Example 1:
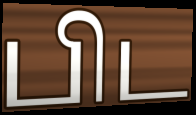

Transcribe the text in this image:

பிட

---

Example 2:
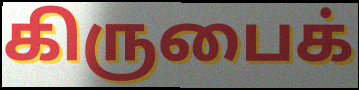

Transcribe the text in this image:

கிருபைக்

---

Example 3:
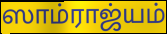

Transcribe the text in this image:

ஸாம்ராஜ்யம்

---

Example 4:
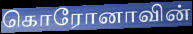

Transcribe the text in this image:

கொரோனாவின்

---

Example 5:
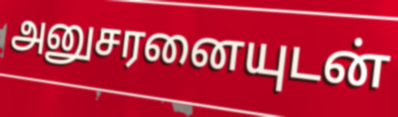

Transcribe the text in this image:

அனுசரனையுடன்